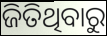
ଜିତିଥିବାରୁ